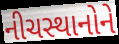
નીચસ્થાનોને